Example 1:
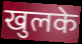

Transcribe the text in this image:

खुलके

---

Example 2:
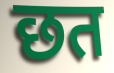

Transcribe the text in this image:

छत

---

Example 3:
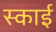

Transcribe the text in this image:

स्काई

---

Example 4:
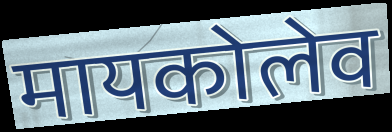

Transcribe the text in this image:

मायकोलेव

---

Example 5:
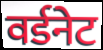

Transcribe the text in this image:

वर्डनेट